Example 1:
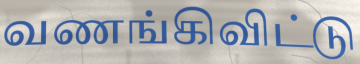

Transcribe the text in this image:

வணங்கிவிட்டு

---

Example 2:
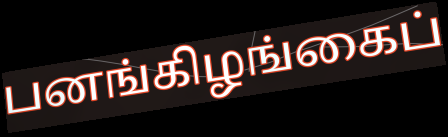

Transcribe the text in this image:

பனங்கிழங்கைப்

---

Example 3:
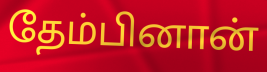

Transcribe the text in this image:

தேம்பினான்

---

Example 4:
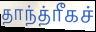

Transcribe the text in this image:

தாந்த்ரீகச்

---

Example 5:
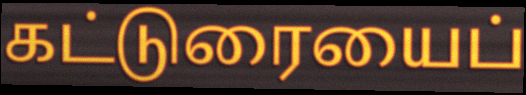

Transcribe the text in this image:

கட்டுரையைப்